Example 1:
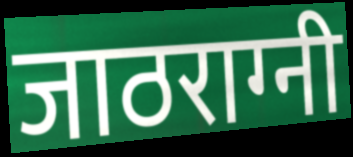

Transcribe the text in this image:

जाठराग्नी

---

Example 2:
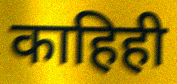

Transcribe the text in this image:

काहिही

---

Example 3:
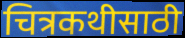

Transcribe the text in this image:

चित्रकथीसाठी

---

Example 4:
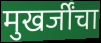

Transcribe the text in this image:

मुखर्जींचा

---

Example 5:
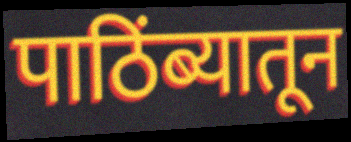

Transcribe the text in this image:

पाठिंब्यातून